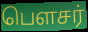
பௌசர்